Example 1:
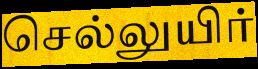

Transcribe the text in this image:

செல்லுயிர்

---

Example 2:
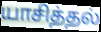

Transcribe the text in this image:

யாசித்தல்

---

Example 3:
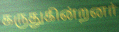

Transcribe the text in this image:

கருதுகின்றனர்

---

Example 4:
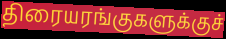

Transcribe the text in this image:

திரையரங்குகளுக்குச்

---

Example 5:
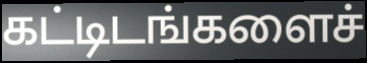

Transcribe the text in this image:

கட்டிடங்களைச்